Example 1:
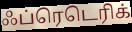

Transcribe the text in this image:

ஃப்ரெடெரிக்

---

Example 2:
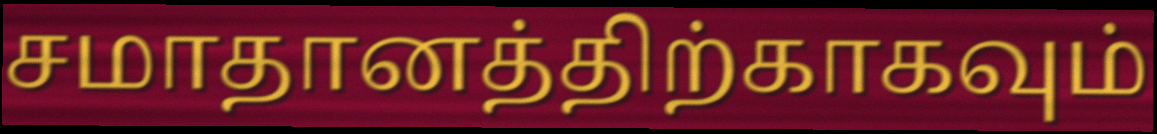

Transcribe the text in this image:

சமாதானத்திற்காகவும்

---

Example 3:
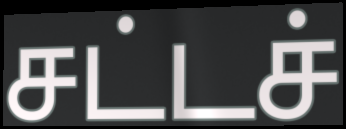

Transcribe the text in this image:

சட்டச்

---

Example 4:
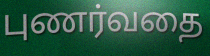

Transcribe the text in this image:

புணர்வதை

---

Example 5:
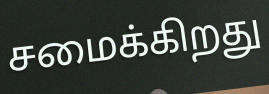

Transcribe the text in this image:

சமைக்கிறது